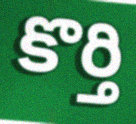
కొర్తి